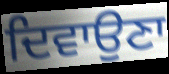
ਦਿਵਾਉਣਾ